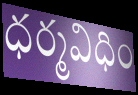
ధర్మవిధిం